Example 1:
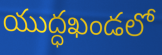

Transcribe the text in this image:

యుద్ధఖండలో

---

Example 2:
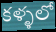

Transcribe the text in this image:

కళ్ళలో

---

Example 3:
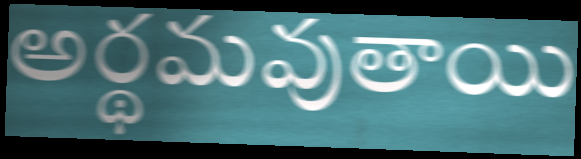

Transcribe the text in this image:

అర్థమవుతాయి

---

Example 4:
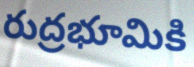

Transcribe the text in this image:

రుద్రభూమికి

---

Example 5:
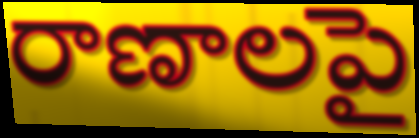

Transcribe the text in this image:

రాణాలపై